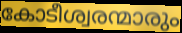
കോടീശ്വരന്മാരും